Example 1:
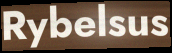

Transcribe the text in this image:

Rybelsus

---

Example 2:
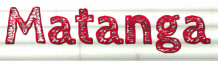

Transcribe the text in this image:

Matanga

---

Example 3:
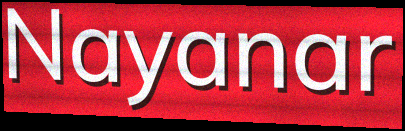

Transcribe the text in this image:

Nayanar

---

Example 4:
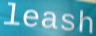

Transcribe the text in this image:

leash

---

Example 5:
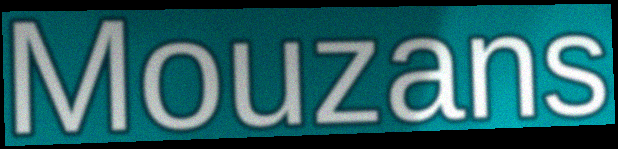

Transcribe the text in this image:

Mouzans